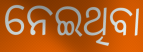
ନେଇଥିବା